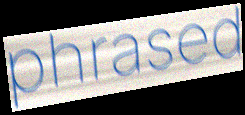
phrased